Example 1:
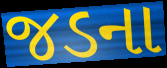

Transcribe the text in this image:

જડના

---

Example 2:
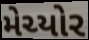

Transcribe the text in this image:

મેચ્યોર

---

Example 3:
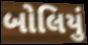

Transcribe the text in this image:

બોલિયું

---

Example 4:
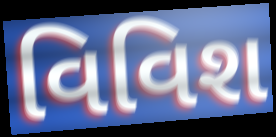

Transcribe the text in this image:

વિવિશ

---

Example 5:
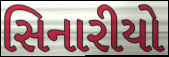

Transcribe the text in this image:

સિનારીયો